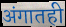
अंगातही